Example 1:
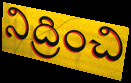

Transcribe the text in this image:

నిద్రించి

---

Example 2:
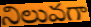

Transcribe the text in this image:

నిలువగా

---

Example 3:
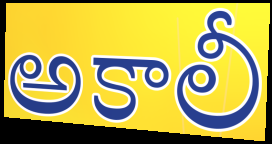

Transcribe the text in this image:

అకాలీ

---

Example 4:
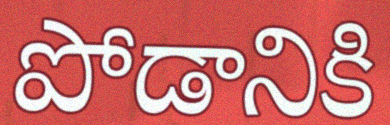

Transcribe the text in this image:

పోడానికి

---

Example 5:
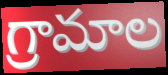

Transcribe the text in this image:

గ్రామాల